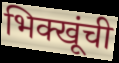
भिक्खूंची